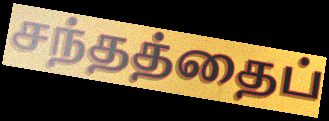
சந்தத்தைப்